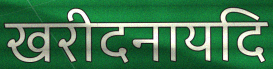
खरीदनायदि